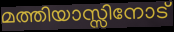
മത്തിയാസ്സിനോട്